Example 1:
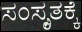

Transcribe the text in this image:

ಸಂಸ್ಕೃತಕ್ಕೆ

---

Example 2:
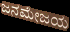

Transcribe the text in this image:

ಜನಮೇಜಯ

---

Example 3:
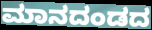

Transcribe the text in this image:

ಮಾನದಂಡದ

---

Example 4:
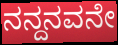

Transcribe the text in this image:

ನನ್ದನವನೇ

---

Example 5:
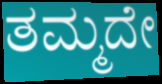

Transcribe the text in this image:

ತಮ್ಮದೇ